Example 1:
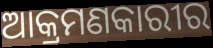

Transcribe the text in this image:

ଆକ୍ରମଣକାରୀର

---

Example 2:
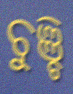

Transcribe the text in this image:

ଚୁଞ୍ଚି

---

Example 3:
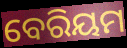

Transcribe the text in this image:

ବେରିୟମ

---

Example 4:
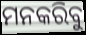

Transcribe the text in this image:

ମନକରିବୁ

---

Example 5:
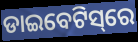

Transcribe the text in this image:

ଡାଇବେଟିସ୍‌ରେ